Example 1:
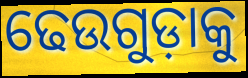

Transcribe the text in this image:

ଢେଉଗୁଡ଼ାକୁ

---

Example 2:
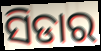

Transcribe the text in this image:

ସିଡାର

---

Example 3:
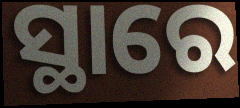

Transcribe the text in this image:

ସ୍ଥାରେ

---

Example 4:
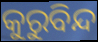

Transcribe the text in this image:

କୁରୁବିନ୍ଦ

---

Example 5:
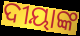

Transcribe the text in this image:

ଦୀୟାଙ୍କ